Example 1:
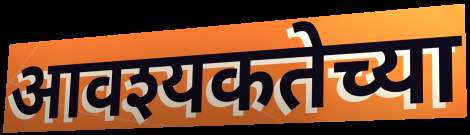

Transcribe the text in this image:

आवश्यकतेच्या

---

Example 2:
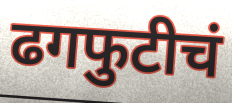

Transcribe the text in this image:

ढगफुटीचं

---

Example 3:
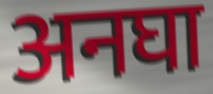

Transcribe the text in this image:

अनघा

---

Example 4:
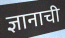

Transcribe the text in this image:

ज्ञानाची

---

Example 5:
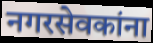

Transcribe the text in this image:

नगरसेवकांना